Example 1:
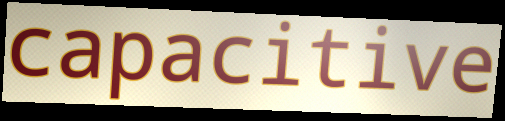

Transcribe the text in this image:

capacitive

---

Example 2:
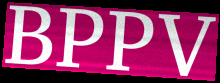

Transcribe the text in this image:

BPPV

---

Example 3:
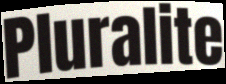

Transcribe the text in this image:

Pluralite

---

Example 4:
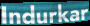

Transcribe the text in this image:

Indurkar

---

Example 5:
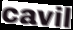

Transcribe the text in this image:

cavil